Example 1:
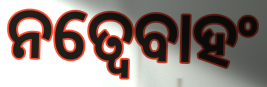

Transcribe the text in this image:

ନତ୍ୱେବାହଂ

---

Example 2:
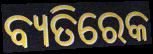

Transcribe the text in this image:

ବ୍ୟତିରେକ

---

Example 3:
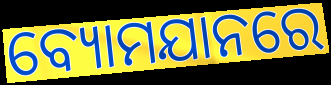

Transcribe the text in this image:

ବ୍ୟୋମଯାନରେ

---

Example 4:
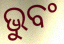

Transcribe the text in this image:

ଭୁବଂ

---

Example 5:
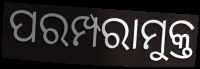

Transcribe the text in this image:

ପରମ୍ପରାମୁକ୍ତ